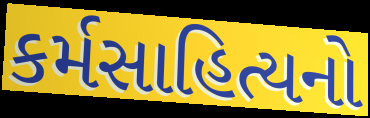
કર્મસાહિત્યનો